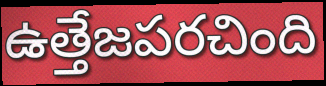
ఉత్తేజపరచింది